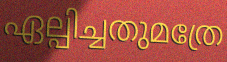
ഏല്പിച്ചതുമത്രേ